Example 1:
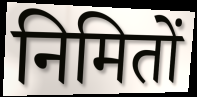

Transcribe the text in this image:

निमितों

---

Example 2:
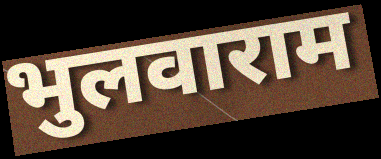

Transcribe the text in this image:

भुलवाराम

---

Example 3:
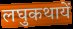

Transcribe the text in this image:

लघुकथायें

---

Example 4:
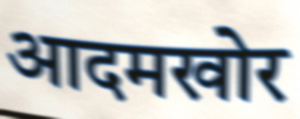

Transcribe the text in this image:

आदमखोर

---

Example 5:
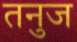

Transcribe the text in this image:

तनुज